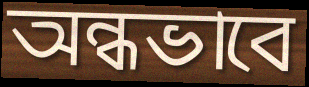
অন্ধভাবে